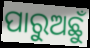
ପାରୁଅଛୁଁ